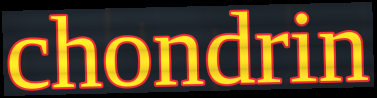
chondrin